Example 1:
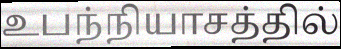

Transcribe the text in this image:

உபந்நியாசத்தில்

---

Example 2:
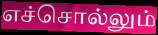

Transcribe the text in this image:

எச்சொல்லும்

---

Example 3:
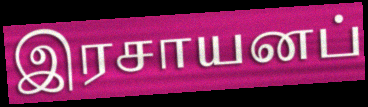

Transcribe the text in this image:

இரசாயனப்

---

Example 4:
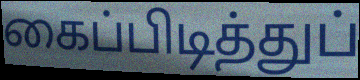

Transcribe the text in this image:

கைப்பிடித்துப்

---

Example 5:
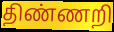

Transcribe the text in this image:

திண்ணறி